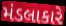
મંડલાકારે